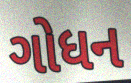
ગોધન